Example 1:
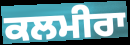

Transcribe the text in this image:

ਕਲਮੀਰਾ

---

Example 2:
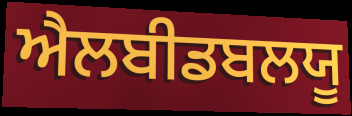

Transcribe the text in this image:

ਐਲਬੀਡਬਲਯੂ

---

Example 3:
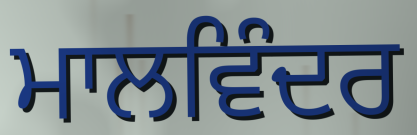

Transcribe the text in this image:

ਮਾਲਵਿੰਦਰ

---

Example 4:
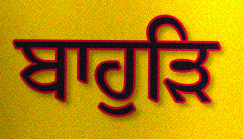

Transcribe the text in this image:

ਬਾਹੁੜਿ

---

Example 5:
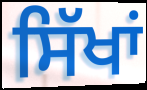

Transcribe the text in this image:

ਸਿੱਖਾਂ